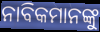
ନାବିକମାନଙ୍କୁ